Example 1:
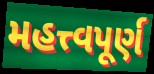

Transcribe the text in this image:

મહત્ત્વપૂર્ણ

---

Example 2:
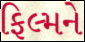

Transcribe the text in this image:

ફિલ્મને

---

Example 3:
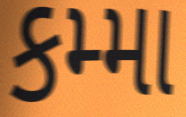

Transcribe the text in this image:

કમ્મા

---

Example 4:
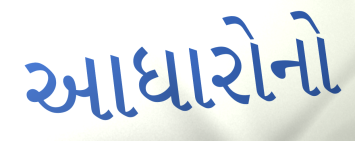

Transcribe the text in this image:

આધારોનો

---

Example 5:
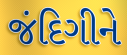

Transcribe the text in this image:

જંદિગીને